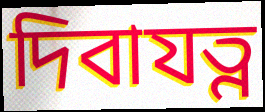
দিবাযত্ন